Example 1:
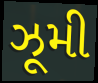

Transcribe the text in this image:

ઝૂમી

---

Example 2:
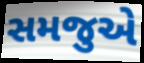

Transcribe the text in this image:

સમજુએ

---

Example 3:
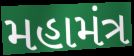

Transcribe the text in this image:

મહામંત્ર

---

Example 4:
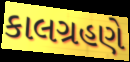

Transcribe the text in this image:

કાલગ્રહણે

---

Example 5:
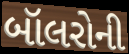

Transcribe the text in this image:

બૉલરોની